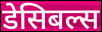
डेसिबल्स